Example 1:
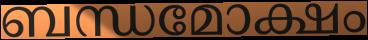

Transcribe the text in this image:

ബന്ധമോക്ഷം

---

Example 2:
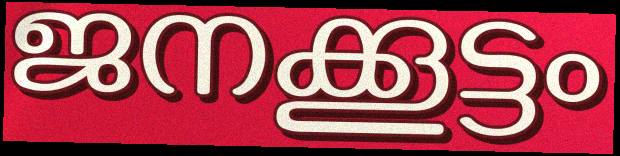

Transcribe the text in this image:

ജനക്കൂട്ടം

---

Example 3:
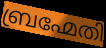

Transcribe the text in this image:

ബ്രഹ്മേതി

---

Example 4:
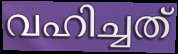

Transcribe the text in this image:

വഹിച്ചത്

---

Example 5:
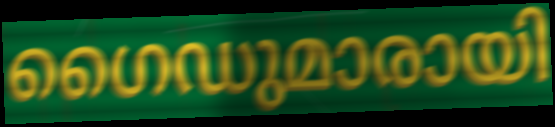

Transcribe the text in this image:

ഗൈഡുമാരായി